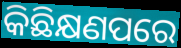
କିଛିକ୍ଷଣପରେ